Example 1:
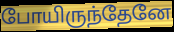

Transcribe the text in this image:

போயிருந்தேனே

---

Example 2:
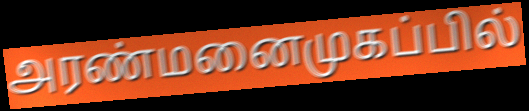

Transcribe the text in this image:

அரண்மனைமுகப்பில்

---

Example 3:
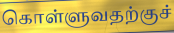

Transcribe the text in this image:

கொள்ளுவதற்குச்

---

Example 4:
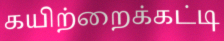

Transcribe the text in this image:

கயிற்றைக்கட்டி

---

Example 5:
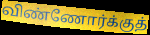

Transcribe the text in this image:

விண்ணோர்க்குத்